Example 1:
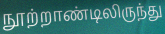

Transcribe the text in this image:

நூற்றாண்டிலிருந்து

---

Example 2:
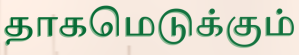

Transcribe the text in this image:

தாகமெடுக்கும்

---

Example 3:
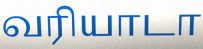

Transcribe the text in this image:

வரியாடா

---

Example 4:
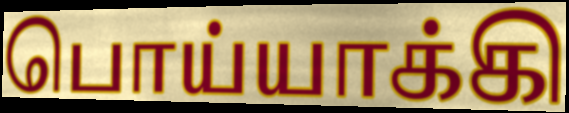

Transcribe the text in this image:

பொய்யாக்கி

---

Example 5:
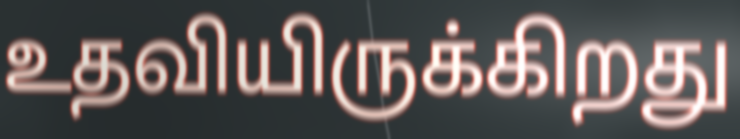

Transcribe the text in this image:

உதவியிருக்கிறது